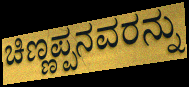
ಚಿಣ್ಣಪ್ಪನವರನ್ನು